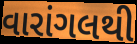
વારાંગલથી